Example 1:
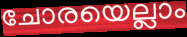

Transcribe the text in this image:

ചോരയെല്ലാം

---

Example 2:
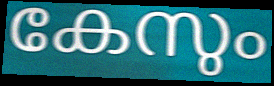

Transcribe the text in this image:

കേസും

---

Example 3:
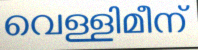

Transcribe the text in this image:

വെള്ളിമീന്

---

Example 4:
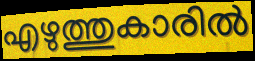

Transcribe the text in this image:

എഴുത്തുകാരിൽ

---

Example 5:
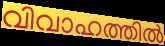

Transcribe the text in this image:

വിവാഹത്തിൽ